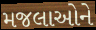
મજલાઓને